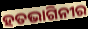
ହତଭାଗିନୀର